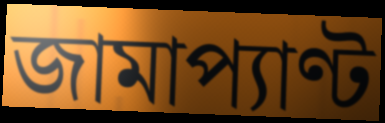
জামাপ্যাণ্ট